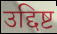
उद्दिष्ट